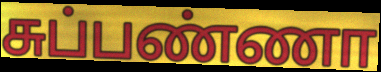
சுப்பண்ணா